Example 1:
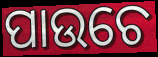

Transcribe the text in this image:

ପାଉଚେ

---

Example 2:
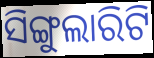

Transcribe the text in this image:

ସିଙ୍ଗୁଲାରିଟି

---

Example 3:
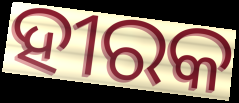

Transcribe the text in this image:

ହୀରକ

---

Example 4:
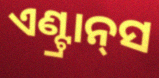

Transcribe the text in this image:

ଏଣ୍ଟ୍ରାନ୍‍ସ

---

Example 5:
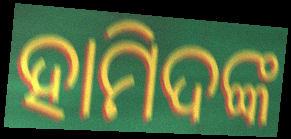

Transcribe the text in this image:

ହାମିଦଙ୍କ